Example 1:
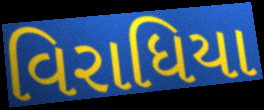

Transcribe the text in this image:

વિરાધિયા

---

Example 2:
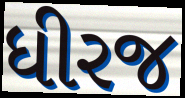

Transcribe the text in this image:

ધીરજ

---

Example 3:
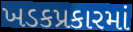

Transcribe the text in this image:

ખડકપ્રકારમાં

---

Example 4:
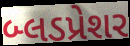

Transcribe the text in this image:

બ્લડપ્રેશર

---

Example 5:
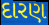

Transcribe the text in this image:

દારણ